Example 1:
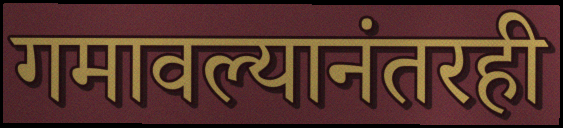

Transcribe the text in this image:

गमावल्यानंतरही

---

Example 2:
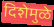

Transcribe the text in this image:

दिशेमुळे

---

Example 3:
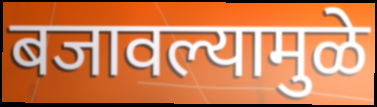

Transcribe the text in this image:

बजावल्यामुळे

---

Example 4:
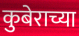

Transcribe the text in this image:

कुबेराच्या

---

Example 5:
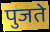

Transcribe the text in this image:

पुजते